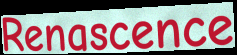
Renascence